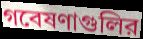
গবেষণাগুলির